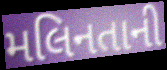
મલિનતાની